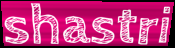
shastri